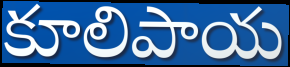
కూలిపాయ